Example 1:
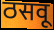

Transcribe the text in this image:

ठसवू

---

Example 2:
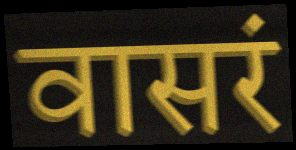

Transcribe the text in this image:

वासरं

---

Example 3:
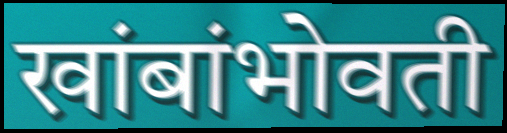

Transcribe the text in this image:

खांबांभोवती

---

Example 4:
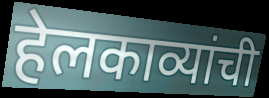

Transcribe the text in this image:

हेलकाव्यांची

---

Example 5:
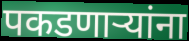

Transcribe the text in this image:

पकडणाऱ्यांना